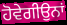
ਹੋਵੇਗੀਉਨਾਂ